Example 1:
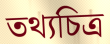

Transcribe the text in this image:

তথ্যচিত্ৰ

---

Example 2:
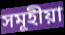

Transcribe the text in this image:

সমূহীয়া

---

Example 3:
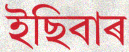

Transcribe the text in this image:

ইছিবাৰ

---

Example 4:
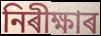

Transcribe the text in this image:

নিৰীক্ষাৰ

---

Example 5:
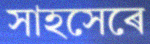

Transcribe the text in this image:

সাহসেৰে